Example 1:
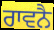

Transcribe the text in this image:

ਰਾਵਨੈ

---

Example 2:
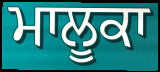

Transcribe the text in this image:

ਮਾਲੂਕਾ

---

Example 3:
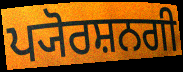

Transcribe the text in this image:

ਪ੍ਯੋਰਸ਼ਨਗੀ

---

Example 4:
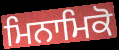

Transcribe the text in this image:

ਮਿਨਾਮਿਕੋ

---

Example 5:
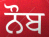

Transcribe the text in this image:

ਨੌਬ